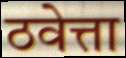
ठवेत्ता